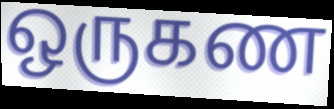
ஒருகண